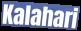
Kalahari